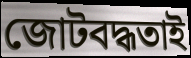
জোটবদ্ধতাই